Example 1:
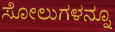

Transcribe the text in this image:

ಸೋಲುಗಳನ್ನೂ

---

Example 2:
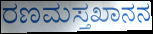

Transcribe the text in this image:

ರಣಮಸ್ತಖಾನನ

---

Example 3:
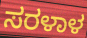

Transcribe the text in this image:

ಸರಳಾಳ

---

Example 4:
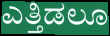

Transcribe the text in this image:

ಎತ್ತಿಡಲೂ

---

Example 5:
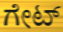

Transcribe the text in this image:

ಗೇಟ್